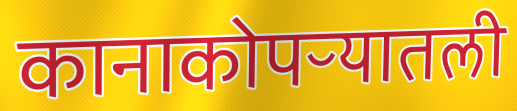
कानाकोपऱ्यातली